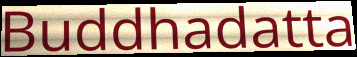
Buddhadatta